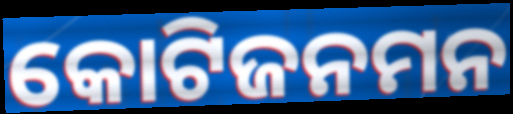
କୋଟିଜନମନ